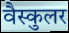
वैस्कुलर